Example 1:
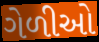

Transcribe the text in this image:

ગેળીઓ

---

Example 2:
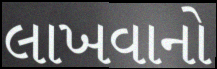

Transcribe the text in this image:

લાખવાનો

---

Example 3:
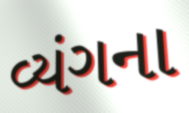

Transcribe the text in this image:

વ્યંગના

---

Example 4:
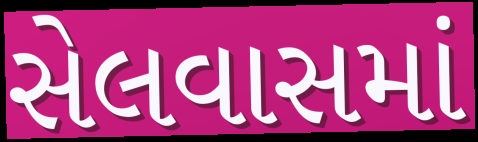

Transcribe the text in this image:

સેલવાસમાં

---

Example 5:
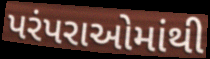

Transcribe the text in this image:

પરંપરાઓમાંથી